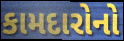
કામદારોનો